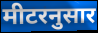
मीटरनुसार